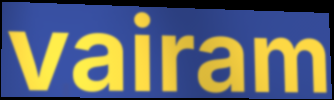
vairam